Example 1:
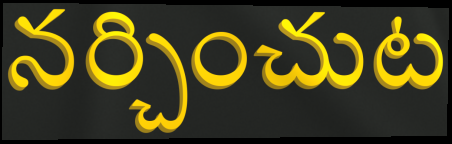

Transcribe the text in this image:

నర్చించుట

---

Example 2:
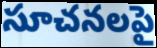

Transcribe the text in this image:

సూచనలపై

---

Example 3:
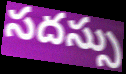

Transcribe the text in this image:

సదస్సు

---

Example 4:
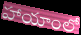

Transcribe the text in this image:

హాయాంలో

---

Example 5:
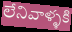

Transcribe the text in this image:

లేనివాళ్ళకి